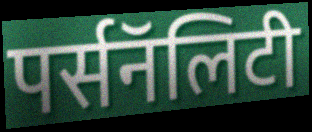
पर्सनॅलिटी